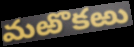
మఱొకఱు